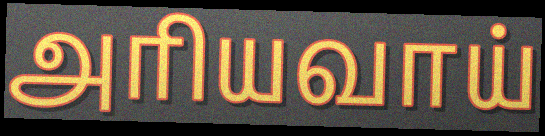
அரியவாய்